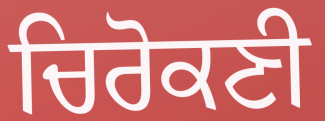
ਚਿਰੋਕਣੀ